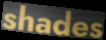
shades